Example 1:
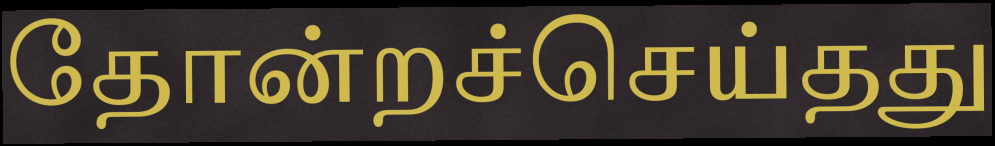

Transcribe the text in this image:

தோன்றச்செய்தது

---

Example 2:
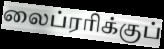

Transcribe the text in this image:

லைப்ரரிக்குப்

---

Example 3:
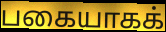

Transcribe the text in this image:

பகையாகக்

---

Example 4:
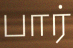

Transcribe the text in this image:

பார்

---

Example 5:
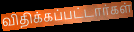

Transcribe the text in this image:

விதிக்கப்பட்டார்கள்